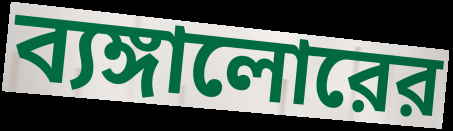
ব্যঙ্গালোরের